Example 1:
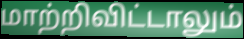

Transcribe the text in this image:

மாற்றிவிட்டாலும்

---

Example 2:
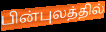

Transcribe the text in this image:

பின்புலத்தில்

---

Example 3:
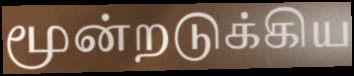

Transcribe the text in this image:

மூன்றடுக்கிய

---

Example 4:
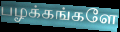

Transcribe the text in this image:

பழக்கங்களே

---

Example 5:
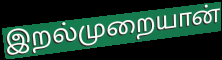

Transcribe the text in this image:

இறல்முறையான்